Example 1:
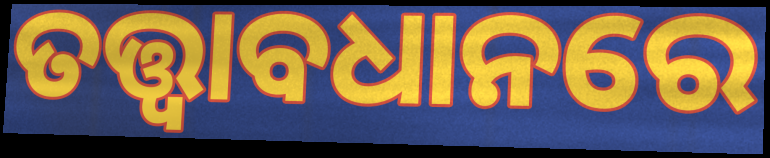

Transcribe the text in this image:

ତତ୍ତ୍ଵାବଧାନରେ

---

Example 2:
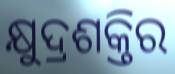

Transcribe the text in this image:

କ୍ଷୁଦ୍ରଶକ୍ତିର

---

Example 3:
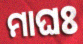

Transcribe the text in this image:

ମାଘଃ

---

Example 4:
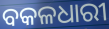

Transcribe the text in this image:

ବକଳଧାରୀ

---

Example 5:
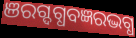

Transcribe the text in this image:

ଞରଗ୍ଦଗ୍ଧବଜ୍ଞରଦ୍ଭଗ୍ଧ